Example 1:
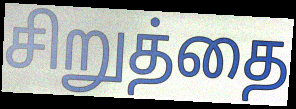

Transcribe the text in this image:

சிறுத்தை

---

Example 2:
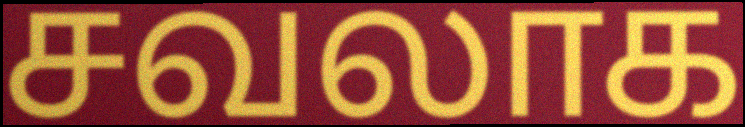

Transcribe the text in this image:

சவலாக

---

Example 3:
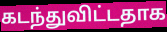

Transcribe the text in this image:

கடந்துவிட்டதாக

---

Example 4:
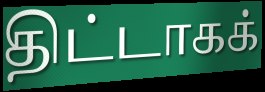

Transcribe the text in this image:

திட்டாகக்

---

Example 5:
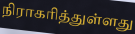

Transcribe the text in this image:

நிராகரித்துள்ளது